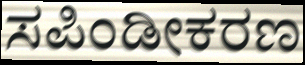
ಸಪಿಂಡೀಕರಣ